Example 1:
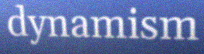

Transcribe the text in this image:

dynamism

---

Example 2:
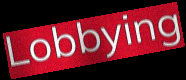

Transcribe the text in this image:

Lobbying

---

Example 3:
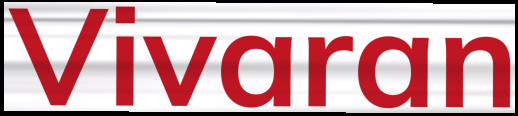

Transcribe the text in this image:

Vivaran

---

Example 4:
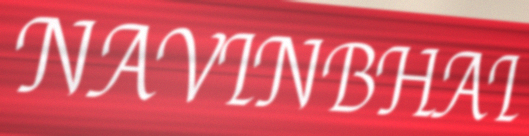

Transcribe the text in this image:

NAVINBHAI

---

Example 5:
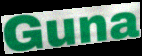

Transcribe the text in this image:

Guna